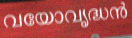
വയോവൃദ്ധൻ